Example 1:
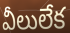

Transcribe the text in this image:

వీలులేక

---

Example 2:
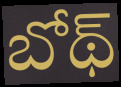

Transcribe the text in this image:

బోథ్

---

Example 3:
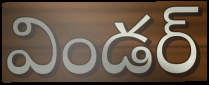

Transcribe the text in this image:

విండర్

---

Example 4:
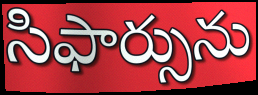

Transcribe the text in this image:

సిఫార్సును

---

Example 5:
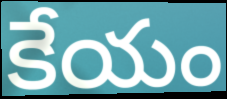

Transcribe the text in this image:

కేయం